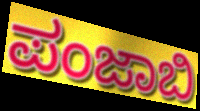
ಪಂಜಾಬಿ